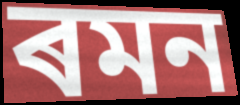
ৰমন